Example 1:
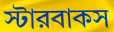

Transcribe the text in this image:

স্টারবাকস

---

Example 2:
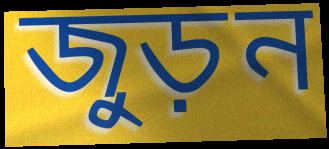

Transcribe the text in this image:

জুড়ন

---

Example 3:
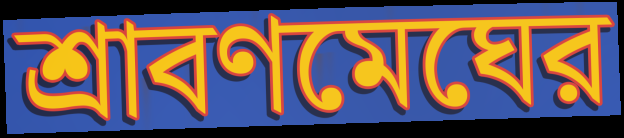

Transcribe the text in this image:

শ্রাবণমেঘের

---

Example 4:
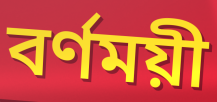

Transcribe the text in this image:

বর্ণময়ী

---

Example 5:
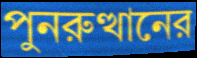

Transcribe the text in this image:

পুনরুত্থানের